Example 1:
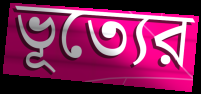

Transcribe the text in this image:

ভূত্যের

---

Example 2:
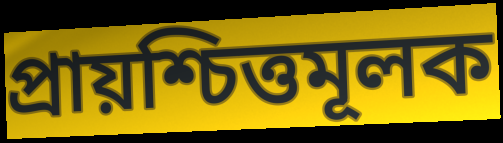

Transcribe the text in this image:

প্রায়শ্চিত্তমূলক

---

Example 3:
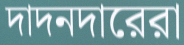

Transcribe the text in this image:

দাদনদারেরা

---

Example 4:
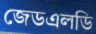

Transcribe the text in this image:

জেডএলডি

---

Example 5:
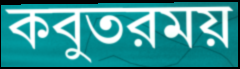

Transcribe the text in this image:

কবুতরময়